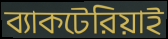
ব্যাকটেরিয়াই